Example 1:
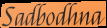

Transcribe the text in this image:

Sadbodhna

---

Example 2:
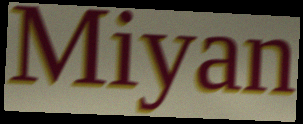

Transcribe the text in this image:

Miyan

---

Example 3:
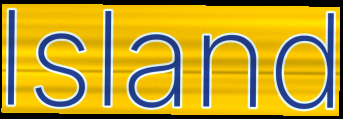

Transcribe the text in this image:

Island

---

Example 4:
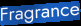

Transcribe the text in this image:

Fragrance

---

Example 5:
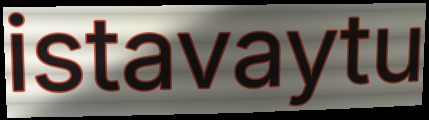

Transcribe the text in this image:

istavaytu